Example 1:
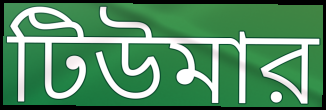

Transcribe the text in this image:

টিউমার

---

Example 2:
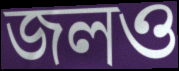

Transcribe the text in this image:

জলও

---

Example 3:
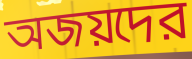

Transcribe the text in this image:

অজয়দের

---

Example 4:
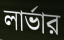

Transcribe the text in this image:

লার্ভার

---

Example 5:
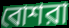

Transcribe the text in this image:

বোশরা